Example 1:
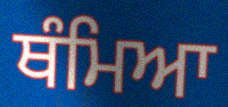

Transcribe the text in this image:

ਥੰਮਿਆ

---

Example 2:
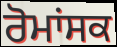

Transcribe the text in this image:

ਰੋਮਾਂਸਕ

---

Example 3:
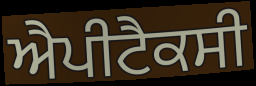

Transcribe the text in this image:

ਐਪੀਟੈਕਸੀ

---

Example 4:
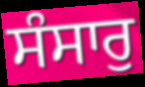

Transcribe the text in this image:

ਸੰਸਾਰੁ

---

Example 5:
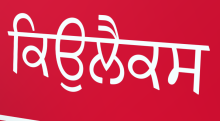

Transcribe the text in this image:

ਕਿਉਲੈਕਸ